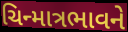
ચિન્માત્રભાવને